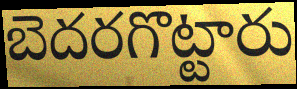
బెదరగొట్టారు